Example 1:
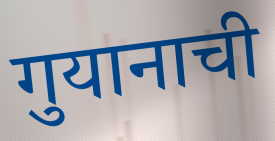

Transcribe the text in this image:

गुयानाची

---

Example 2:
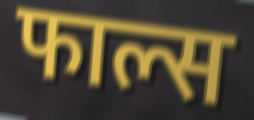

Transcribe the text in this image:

फाल्स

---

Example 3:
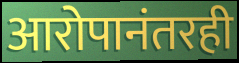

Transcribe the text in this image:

आरोपानंतरही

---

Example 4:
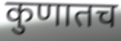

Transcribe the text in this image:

कुणातच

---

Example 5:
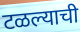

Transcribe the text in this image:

टळल्याची